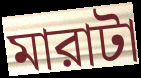
মারাটা